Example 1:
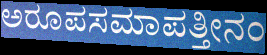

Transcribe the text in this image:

ಅರೂಪಸಮಾಪತ್ತೀನಂ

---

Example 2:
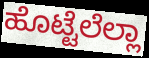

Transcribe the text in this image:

ಹೊಟ್ಟೆಲೆಲ್ಲಾ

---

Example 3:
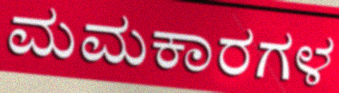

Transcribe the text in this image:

ಮಮಕಾರಗಳ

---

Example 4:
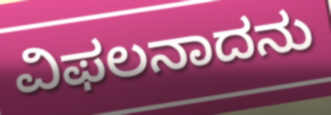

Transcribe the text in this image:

ವಿಫಲನಾದನು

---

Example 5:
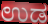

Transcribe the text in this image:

ಉಡ